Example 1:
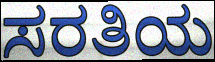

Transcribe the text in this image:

ಸರತಿಯ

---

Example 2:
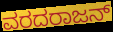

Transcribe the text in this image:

ವರದರಾಜನ್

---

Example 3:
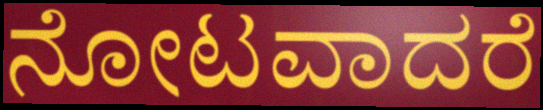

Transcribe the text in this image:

ನೋಟವಾದರೆ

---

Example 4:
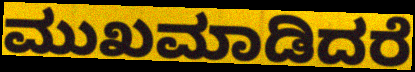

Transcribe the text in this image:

ಮುಖಮಾಡಿದರೆ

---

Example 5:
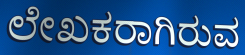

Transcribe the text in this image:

ಲೇಖಕರಾಗಿರುವ